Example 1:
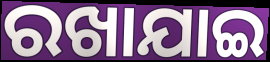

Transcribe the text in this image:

ରଖାଯାଇ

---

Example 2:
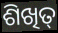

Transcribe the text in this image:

ଶିଖିତ୍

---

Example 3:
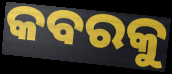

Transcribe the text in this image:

କବରକୁ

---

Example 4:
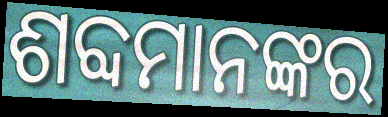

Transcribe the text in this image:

ଶବ୍ଦମାନଙ୍କର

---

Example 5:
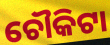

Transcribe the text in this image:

ଚୌକିଟା